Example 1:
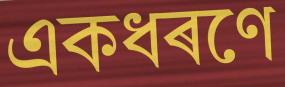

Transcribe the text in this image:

একধৰণে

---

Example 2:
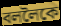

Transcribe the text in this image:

বললৈকে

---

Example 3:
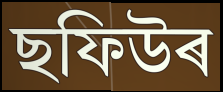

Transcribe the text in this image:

ছফিউৰ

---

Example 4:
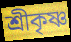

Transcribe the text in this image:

শ্ৰীকৃষ্ণ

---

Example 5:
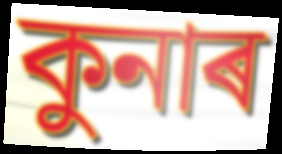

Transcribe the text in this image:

কুনাৰ